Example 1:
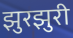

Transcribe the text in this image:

झुरझुरी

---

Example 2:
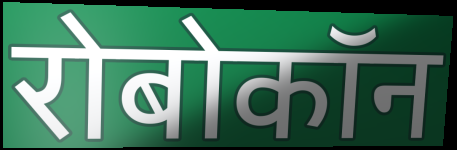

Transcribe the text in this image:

रोबोकॉन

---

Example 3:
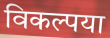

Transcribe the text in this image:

विकल्पया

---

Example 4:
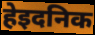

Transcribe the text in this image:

हेइदनिक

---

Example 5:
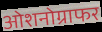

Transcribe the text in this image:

ओशनोग्राफर